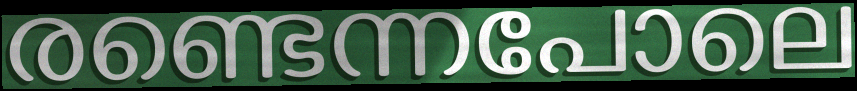
രണ്ടെന്നപോലെ